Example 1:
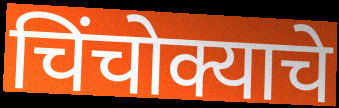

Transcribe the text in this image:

चिंचोक्याचे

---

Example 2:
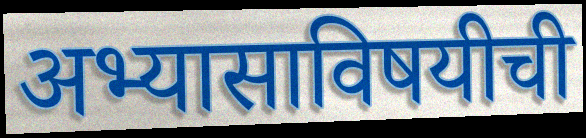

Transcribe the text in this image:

अभ्यासाविषयीची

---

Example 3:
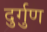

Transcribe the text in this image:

दुर्गुण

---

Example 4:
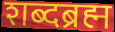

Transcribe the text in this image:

शब्दब्रह्म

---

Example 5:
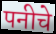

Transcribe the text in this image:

पनीचे